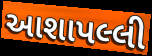
આશાપલ્લી